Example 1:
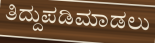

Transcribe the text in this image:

ತಿದ್ದುಪಡಿಮಾಡಲು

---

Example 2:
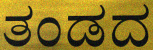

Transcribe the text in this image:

ತಂಡದ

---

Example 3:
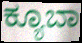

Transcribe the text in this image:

ಕ್ಯೂಬಾ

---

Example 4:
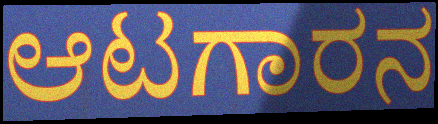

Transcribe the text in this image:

ಆಟಗಾರನ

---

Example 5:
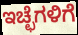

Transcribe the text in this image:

ಇಚ್ಛೆಗಳಿಗೆ